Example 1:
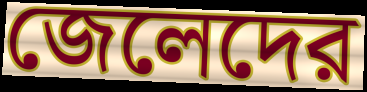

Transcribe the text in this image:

জেলেদের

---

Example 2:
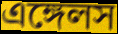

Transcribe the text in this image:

এঙ্গেলস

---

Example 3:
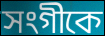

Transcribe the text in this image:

সংগীকে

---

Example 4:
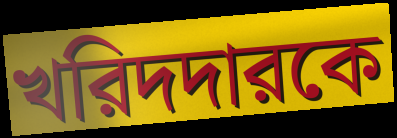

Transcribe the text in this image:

খরিদদারকে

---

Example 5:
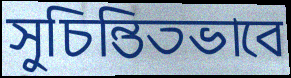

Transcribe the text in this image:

সুচিন্তিতভাবে